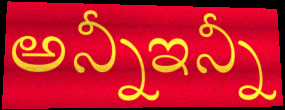
అన్నీఇన్నీ